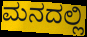
ಮನದಲ್ಲಿ